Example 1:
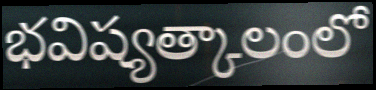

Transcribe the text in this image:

భవిష్యత్కాలంలో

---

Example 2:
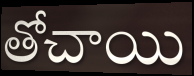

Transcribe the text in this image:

తోచాయి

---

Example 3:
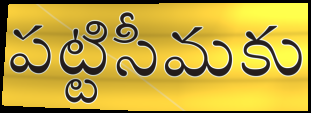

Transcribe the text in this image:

పట్టిసీమకు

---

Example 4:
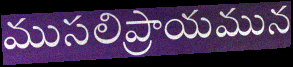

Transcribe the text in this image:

ముసలిప్రాయమున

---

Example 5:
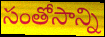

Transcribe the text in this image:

సంతోసాన్ని